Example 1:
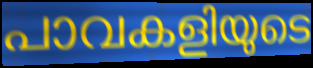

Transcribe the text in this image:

പാവകളിയുടെ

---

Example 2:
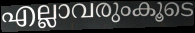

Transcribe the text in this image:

എല്ലാവരുംകൂടെ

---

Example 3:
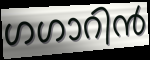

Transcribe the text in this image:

ഗഗാറിൻ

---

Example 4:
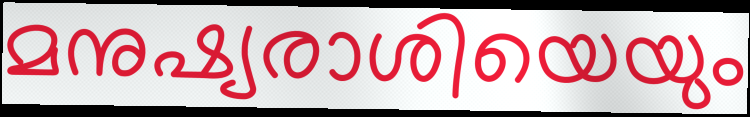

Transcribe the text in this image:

മനുഷ്യരാശിയെയും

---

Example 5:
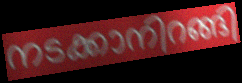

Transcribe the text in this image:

നടക്കാനിറങ്ങി